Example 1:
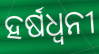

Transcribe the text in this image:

ହର୍ଷଧ୍ୱନୀ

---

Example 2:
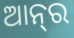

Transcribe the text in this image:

ଆନ୍‌ର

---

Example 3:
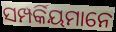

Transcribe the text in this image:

ସମ୍ପର୍କିୟମାନେ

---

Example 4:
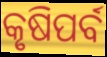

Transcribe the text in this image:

କୃଷିପର୍ବ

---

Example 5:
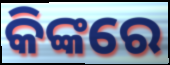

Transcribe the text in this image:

କିଙ୍କରେ